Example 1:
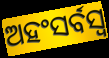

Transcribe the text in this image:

ଅହଂସର୍ବସ୍ୱ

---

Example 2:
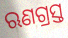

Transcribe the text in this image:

ଋଣଗ୍ରସ୍ତ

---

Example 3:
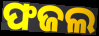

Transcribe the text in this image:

ଫଜଲ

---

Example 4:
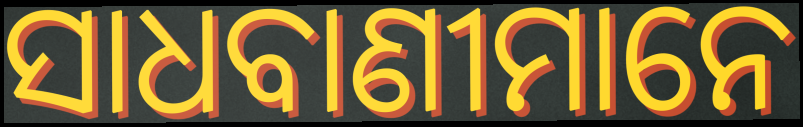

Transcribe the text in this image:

ସାଧବାଣୀମାନେ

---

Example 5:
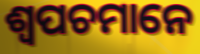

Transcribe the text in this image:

ଶ୍ୱପଚମାନେ